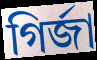
গির্জা